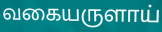
வகையருளாய்